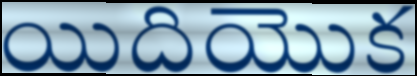
యిదియొక